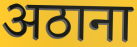
अठाना